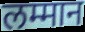
लम्मान